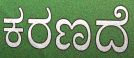
ಕರಣದೆ